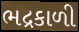
ભદ્રકાળી